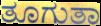
ತೂಗುತಾ